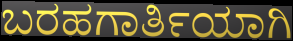
ಬರಹಗಾರ್ತಿಯಾಗಿ